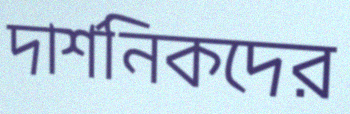
দার্শনিকদের